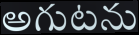
అగుటను